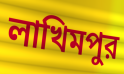
লাখিমপুর